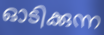
ഓടിക്കുന്ന